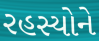
રહસ્યોને